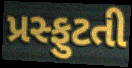
પ્રસ્ફુટતી